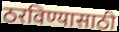
ठरविण्यासाठी